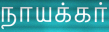
நாயக்கர்